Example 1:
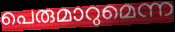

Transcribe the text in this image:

പെരുമാറുമെന്ന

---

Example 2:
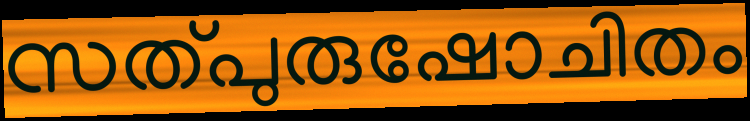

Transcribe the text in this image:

സത്പുരുഷോചിതം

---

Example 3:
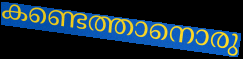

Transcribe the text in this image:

കണ്ടെത്താനൊരു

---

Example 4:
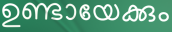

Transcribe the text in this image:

ഉണ്ടായേക്കും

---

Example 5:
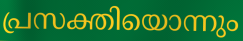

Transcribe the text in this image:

പ്രസക്തിയൊന്നും